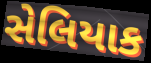
સેલિયાક